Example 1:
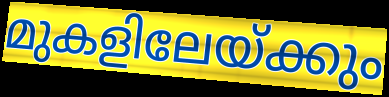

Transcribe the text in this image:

മുകളിലേയ്ക്കും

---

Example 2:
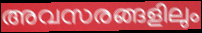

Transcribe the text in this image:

അവസരങ്ങളിലും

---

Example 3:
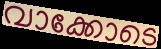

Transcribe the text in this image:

വാക്കോടെ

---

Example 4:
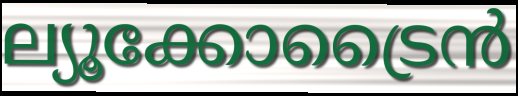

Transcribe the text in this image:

ല്യൂക്കോട്രൈൻ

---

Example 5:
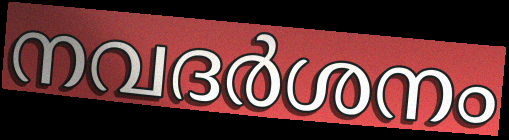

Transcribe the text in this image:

നവദർശനം